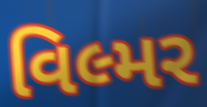
વિલ્મર